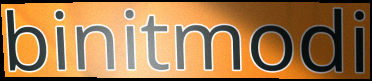
binitmodi